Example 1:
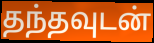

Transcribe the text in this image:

தந்தவுடன்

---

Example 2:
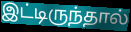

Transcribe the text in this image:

இட்டிருந்தால்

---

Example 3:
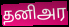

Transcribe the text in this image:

தனிஅர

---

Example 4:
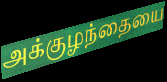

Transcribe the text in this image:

அக்குழந்தையை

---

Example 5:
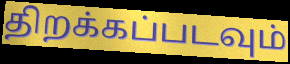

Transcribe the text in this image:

திறக்கப்படவும்